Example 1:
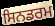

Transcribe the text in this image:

ਸਿਨਡਰਮ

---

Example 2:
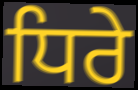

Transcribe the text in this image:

ਧਿਰੇ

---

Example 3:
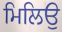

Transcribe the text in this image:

ਮਿਲਿਉ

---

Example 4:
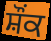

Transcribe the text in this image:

ਸ਼ੌਂਕ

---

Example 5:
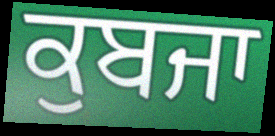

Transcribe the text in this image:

ਕੁਬਜਾ